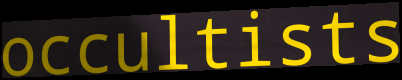
occultists